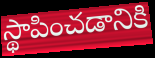
స్థాపించడానికి